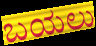
ಬಯಲು